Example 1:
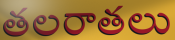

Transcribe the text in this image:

తలరాతలు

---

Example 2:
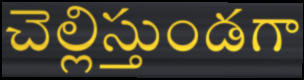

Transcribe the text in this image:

చెల్లిస్తుండగా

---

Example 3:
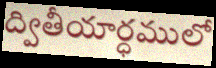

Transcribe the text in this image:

ద్వితీయార్ధములో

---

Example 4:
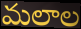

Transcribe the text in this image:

మలాల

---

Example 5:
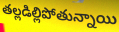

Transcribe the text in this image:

తల్లడిల్లిపోతున్నాయి